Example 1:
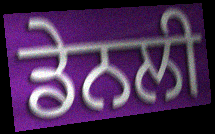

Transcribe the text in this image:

ਡੇਨਲੀ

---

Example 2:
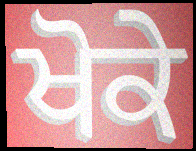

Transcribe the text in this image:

ਖੋਕੇ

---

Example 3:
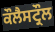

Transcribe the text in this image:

ਕੌਲੈਸਟ੍ਰੌਲ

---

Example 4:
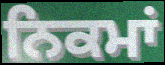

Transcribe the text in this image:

ਨਿਕਮਾਂ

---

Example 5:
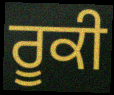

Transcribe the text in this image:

ਰੂਕੀ